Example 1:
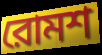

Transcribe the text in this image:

রোমশ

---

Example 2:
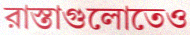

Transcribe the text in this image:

রাস্তাগুলোতেও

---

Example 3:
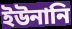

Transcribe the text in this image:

ইউনানি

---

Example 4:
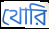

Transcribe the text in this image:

থোরি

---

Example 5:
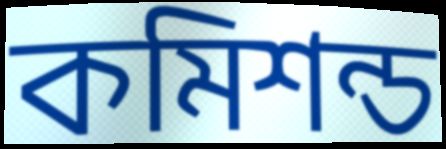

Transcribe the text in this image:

কমিশন্ড